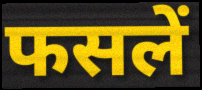
फसलें